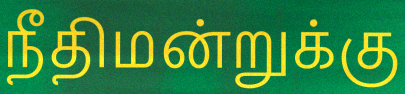
நீதிமன்றுக்கு